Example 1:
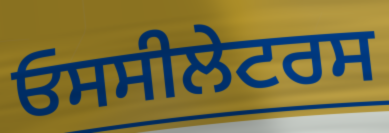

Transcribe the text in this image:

ਓਸਸੀਲੇਟਰਸ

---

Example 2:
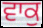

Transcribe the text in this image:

ਵਾਕੁ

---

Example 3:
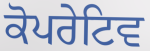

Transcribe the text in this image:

ਕੋਪਰੇਟਿਵ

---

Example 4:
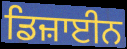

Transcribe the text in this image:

ਡਿਜ਼ਾਈਨ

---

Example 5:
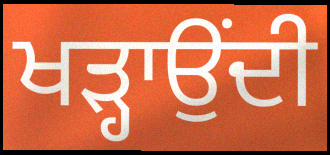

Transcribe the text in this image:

ਖੜ੍ਹਾਉਂਦੀ